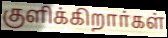
குளிக்கிறார்கள்